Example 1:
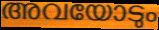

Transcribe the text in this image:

അവയോടും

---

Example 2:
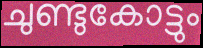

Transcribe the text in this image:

ചുണ്ടുകോട്ടും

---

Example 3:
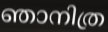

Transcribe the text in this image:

ഞാനിത്ര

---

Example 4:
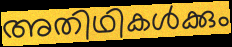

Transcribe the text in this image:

അതിഥികൾക്കും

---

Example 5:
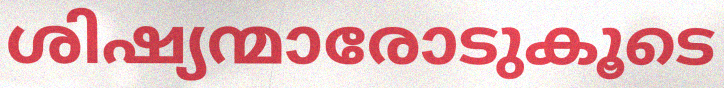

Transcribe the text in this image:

ശിഷ്യന്മാരോടുകൂടെ